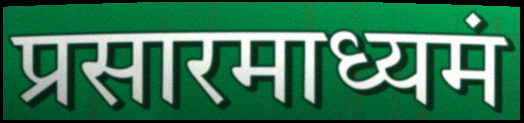
प्रसारमाध्यमं